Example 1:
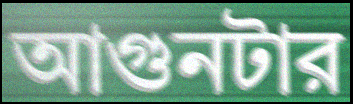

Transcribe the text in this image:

আগুনটার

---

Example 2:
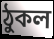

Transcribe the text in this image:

ঠুকল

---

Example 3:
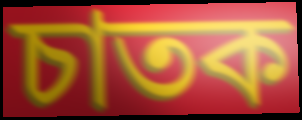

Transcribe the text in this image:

চাতক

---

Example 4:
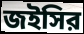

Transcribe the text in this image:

জইসির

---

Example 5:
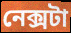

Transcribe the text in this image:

নেক্সটা